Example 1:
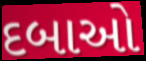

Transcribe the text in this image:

દબાઓ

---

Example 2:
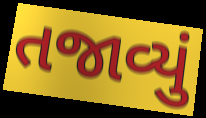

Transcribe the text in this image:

તજાવ્યું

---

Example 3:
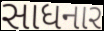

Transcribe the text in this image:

સાધનાર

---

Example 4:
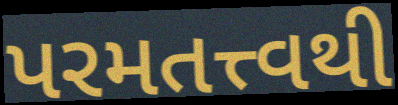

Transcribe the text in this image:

પરમતત્ત્વથી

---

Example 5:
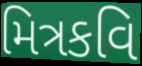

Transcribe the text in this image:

મિત્રકવિ